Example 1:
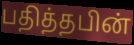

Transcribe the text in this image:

பதித்தபின்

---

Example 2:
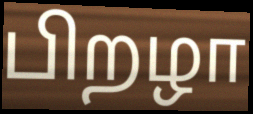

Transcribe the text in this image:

பிறழா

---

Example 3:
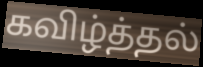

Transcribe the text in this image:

கவிழ்த்தல்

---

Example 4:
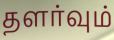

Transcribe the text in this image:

தளர்வும்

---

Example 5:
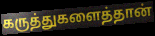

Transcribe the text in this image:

கருத்துகளைத்தான்